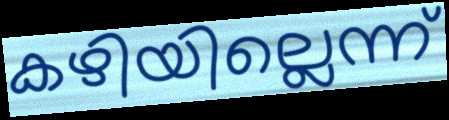
കഴിയില്ലെന്ന്